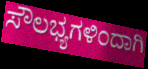
ಸೌಲಭ್ಯಗಳಿಂದಾಗಿ